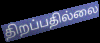
திறப்பதில்லை